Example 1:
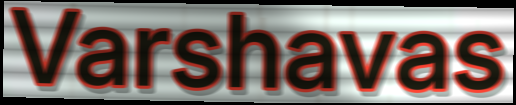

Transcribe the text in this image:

Varshavas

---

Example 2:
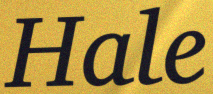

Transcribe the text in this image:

Hale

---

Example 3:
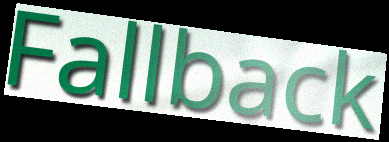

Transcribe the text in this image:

Fallback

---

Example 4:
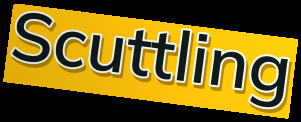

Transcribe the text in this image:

Scuttling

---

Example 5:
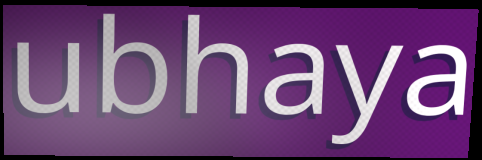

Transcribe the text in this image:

ubhaya